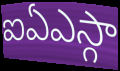
ఐఏఎస్గా